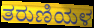
ತರುಣಿಯಳ